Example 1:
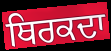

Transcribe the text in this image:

ਥਿਰਕਦਾ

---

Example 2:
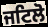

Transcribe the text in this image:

ਜਟਿਲੋ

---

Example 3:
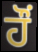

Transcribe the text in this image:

ਹੌਂ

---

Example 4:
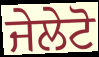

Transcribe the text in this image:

ਜੇਲੇਟੋ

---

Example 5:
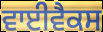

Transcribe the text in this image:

ਵਾਈਵੈਕਸ